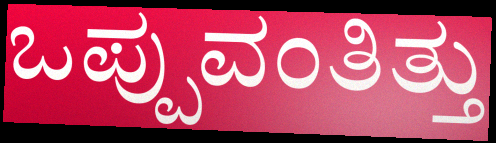
ಒಪ್ಪುವಂತಿತ್ತು